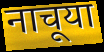
नाचूया